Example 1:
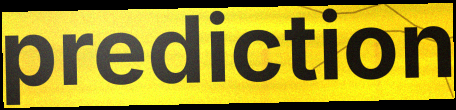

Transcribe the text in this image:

prediction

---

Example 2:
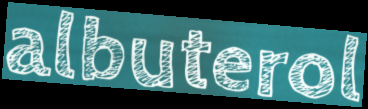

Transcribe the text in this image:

albuterol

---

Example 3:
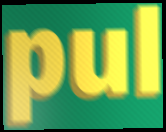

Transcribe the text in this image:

pul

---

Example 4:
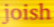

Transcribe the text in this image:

joish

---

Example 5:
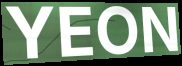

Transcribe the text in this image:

YEON